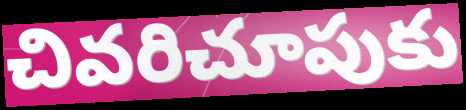
చివరిచూపుకు